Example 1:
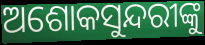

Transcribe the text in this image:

ଅଶୋକସୁନ୍ଦରୀଙ୍କୁ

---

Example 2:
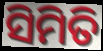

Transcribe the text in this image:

ସିମିତି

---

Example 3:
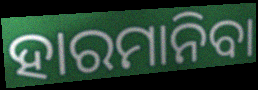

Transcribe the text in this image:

ହାରମାନିବା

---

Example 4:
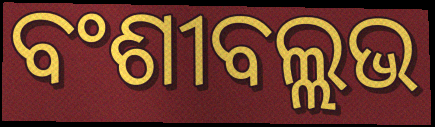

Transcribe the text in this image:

ବଂଶୀବଲ୍ଲଭ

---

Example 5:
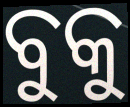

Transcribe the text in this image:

ବୁକୁ